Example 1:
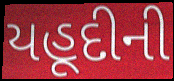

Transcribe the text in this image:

યહૂદીની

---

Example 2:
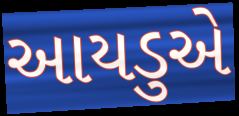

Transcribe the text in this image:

આયડુએ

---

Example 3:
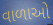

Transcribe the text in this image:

વાળાઓ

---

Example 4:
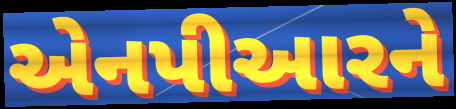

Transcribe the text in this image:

એનપીઆરને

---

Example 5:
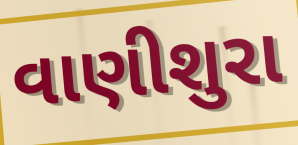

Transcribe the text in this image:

વાણીશુરા